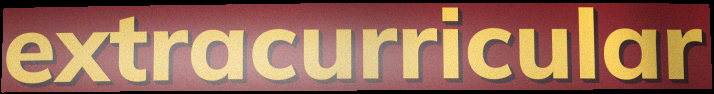
extracurricular